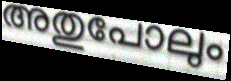
അതുപോലും